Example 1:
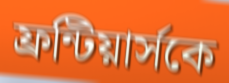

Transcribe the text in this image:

ফ্রন্টিয়ার্সকে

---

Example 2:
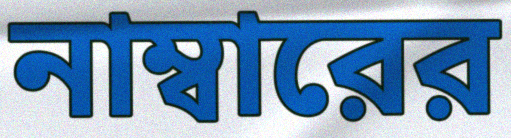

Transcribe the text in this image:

নাম্বারের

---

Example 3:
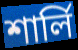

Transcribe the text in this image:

শার্লি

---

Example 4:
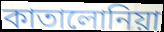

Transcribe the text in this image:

কাতালোনিয়া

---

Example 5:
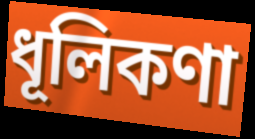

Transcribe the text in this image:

ধূলিকণা